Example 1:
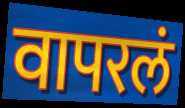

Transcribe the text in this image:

वापरलं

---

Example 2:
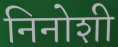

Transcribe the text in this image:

निनोशी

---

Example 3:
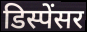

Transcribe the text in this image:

डिस्पेंसर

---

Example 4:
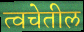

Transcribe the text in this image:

त्वचेतील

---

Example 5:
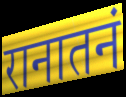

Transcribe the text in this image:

रानातनं